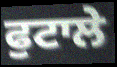
ਫੁਟਾਲੇ